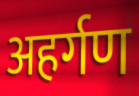
अहर्गण